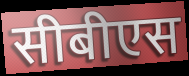
सीबीएस